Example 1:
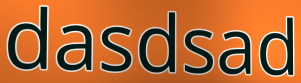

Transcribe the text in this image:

dasdsad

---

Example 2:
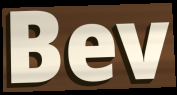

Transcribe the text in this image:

Bev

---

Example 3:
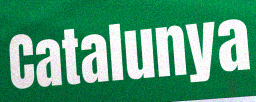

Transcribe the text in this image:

Catalunya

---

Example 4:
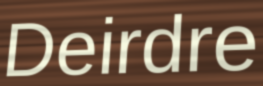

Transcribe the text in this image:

Deirdre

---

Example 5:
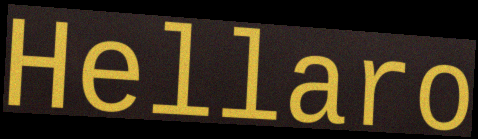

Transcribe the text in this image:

Hellaro